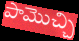
పామొచ్చి